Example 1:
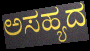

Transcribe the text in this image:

ಅಸಹ್ಯದ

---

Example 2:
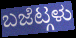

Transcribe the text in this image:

ಬಜೆಟ್ಗಳು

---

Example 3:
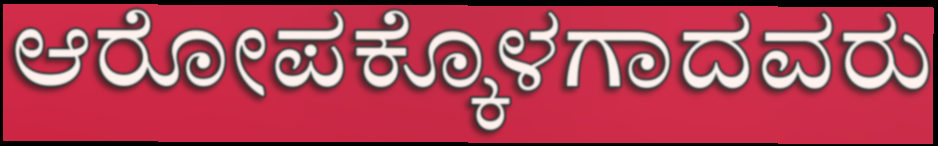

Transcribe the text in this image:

ಆರೋಪಕ್ಕೊಳಗಾದವರು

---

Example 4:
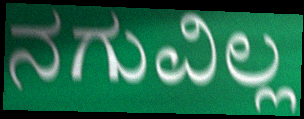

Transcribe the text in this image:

ನಗುವಿಲ್ಲ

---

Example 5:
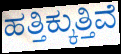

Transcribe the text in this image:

ಹತ್ತಿಕ್ಕುತ್ತಿವೆ